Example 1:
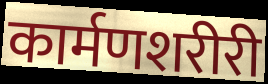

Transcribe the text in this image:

कार्मणशरीरी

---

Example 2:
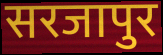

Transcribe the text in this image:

सरजापुर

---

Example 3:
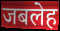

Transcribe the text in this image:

जबलेह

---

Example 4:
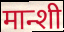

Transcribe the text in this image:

मान्शी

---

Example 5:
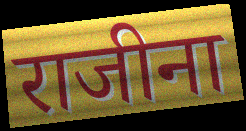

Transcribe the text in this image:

राजीना